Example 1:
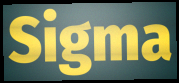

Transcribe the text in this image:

Sigma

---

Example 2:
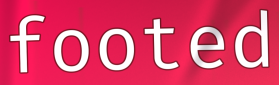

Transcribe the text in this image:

footed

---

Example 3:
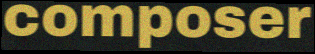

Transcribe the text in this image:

composer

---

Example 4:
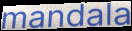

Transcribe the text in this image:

mandala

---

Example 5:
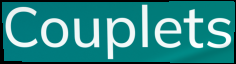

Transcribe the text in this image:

Couplets